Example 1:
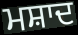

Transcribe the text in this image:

ਮਸ਼ਾਦ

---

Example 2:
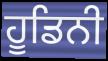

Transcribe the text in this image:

ਹੂਡਿਨੀ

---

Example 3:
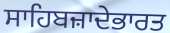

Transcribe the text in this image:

ਸਾਹਿਬਜ਼ਾਦੇਭਾਰਤ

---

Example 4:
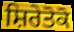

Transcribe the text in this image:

ਸ਼ਿਰੇਤੋਕੋ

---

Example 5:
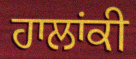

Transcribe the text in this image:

ਹਾਲਾਂਕੀ